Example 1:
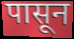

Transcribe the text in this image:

पासून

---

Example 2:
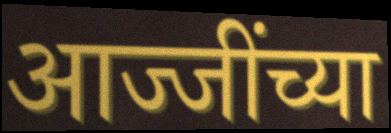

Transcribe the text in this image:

आज्जींच्या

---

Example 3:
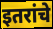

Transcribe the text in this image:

इतरांचे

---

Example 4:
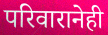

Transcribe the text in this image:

परिवारानेही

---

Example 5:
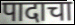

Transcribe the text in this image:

पादाचा